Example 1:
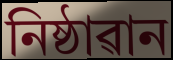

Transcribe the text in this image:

নিষ্ঠাৱান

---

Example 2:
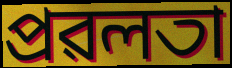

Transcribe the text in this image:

প্ৰৱলতা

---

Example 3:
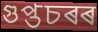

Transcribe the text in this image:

গুপ্তচৰৰ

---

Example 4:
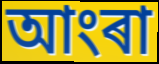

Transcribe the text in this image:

আংৰা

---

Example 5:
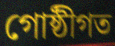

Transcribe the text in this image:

গোষ্ঠীগত